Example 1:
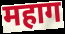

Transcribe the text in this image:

महाग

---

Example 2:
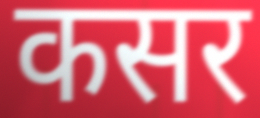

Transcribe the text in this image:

कसर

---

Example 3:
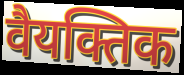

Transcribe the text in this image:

वैयक्तिक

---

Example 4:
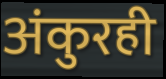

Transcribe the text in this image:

अंकुरही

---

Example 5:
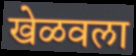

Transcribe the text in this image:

खेळवला